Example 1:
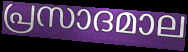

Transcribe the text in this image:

പ്രസാദമാല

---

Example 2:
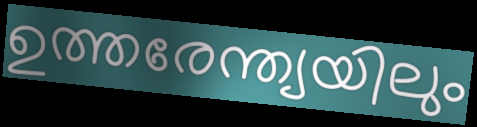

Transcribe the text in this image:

ഉത്തരേന്ത്യയിലും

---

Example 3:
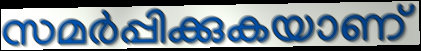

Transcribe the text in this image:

സമർപ്പിക്കുകയാണ്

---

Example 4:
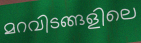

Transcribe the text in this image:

മറവിടങ്ങളിലെ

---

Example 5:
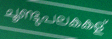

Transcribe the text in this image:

ചൂണ്ടുപലകകള്